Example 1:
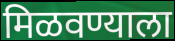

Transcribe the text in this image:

मिळवण्याला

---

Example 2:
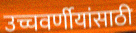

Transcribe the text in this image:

उच्चवर्णीयांसाठी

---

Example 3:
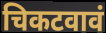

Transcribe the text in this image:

चिकटवावं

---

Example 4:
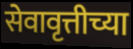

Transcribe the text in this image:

सेवावृत्तीच्या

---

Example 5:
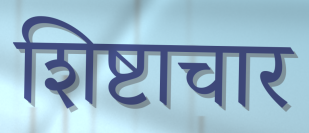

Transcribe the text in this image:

शिष्टाचार